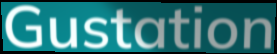
Gustation